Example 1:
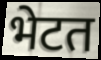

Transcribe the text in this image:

भेटत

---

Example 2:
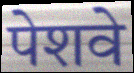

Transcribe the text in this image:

पेशवे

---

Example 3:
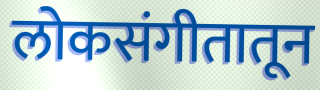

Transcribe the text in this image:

लोकसंगीतातून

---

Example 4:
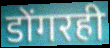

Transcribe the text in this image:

डोंगरही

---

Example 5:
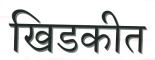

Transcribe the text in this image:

खिडकीत